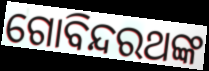
ଗୋବିନ୍ଦରଥଙ୍କ